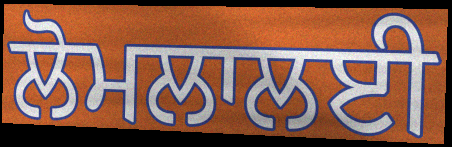
ਲੋਮਲਾਲਈ